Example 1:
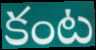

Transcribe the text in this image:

కంట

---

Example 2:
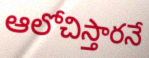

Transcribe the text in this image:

ఆలోచిస్తారనే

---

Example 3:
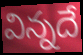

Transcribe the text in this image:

విన్నదే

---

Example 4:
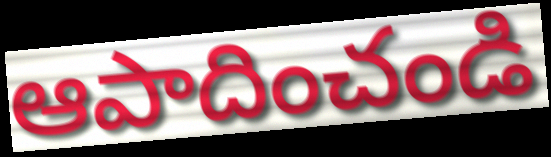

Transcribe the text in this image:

ఆపాదించండి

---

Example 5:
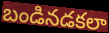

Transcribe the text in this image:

బండినడకలా